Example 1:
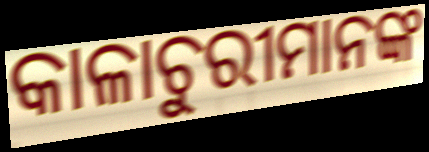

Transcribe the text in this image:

କାଳାଚୁରୀମାନଙ୍କ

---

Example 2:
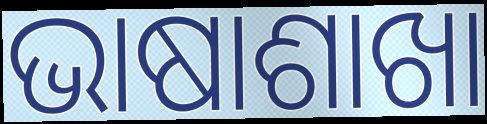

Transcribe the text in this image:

ଭାଷାଶାଖା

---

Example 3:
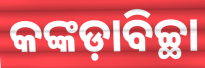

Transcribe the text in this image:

କଙ୍କଡ଼ାବିଚ୍ଛା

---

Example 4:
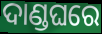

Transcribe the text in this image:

ଦାଣ୍ଡଘରେ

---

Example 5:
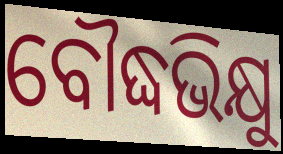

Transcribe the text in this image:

ବୌଦ୍ଧଭିକ୍ଷୁ